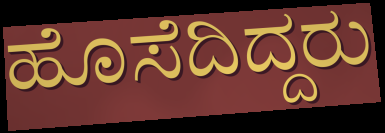
ಹೊಸೆದಿದ್ದರು